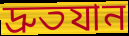
দ্রুতযান